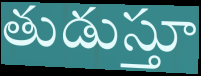
తుడుస్తూ